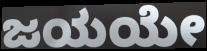
ಜಯಯೇ